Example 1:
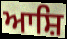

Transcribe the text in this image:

ਆਸ਼ਿ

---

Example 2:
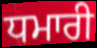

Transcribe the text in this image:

ਧਮਾਰੀ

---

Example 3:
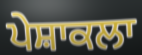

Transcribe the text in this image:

ਪੇਸ਼ਾਕਲਾ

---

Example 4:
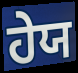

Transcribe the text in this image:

ਹੇਯ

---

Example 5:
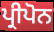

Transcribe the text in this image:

ਪ੍ਰੀਪੋਨ